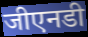
जीएनडी